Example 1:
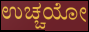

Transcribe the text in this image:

ಉಚ್ಚಯೋ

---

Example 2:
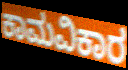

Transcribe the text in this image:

ಕಾಮವಿಕಾರ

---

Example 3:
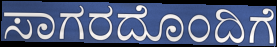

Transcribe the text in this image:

ಸಾಗರದೊಂದಿಗೆ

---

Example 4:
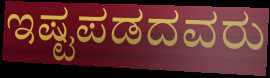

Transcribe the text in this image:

ಇಷ್ಟಪಡದವರು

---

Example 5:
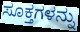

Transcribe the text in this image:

ಸೂಕ್ತಗಳನ್ನು